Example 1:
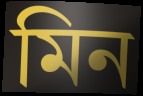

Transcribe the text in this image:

মিন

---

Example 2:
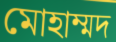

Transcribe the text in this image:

মোহাম্মদ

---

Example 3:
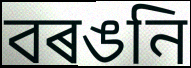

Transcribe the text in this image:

বৰঙনি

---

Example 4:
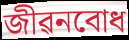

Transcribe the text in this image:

জীৱনবোধ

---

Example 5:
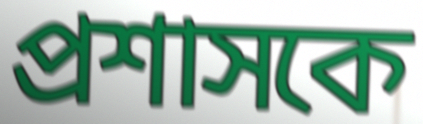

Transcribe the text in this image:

প্ৰশাসকে